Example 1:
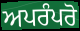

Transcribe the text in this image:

ਅਪਰੰਪਰੋ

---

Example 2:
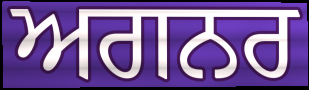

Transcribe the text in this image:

ਅਗਨਰ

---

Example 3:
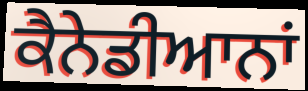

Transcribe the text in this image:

ਕੈਨੇਡੀਆਨਾਂ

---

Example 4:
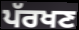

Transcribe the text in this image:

ਪੱਰਖਣ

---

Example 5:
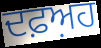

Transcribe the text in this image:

ਦਫ਼ਅ਼ਹ